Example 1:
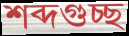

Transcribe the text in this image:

শব্দগুচ্ছ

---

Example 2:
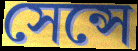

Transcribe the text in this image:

সেন্সে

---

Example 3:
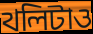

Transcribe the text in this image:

থলিটাও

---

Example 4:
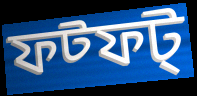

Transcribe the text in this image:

ফট্ফট্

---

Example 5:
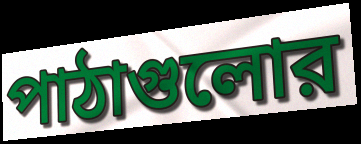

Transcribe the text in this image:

পাঠাগুলোর